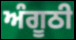
ਅੰਗੂਠੀ